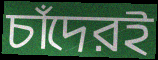
চাঁদেরই